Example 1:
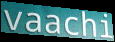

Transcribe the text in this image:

vaachi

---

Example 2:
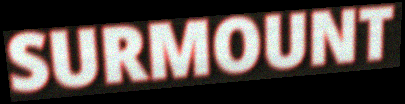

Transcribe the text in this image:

SURMOUNT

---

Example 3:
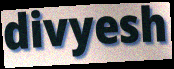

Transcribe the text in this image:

divyesh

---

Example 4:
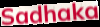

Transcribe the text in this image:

Sadhaka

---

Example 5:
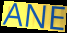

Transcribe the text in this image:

ANE